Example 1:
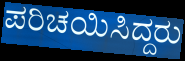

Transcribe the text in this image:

ಪರಿಚಯಿಸಿದ್ದರು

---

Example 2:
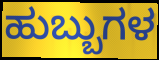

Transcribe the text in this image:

ಹುಬ್ಬುಗಳ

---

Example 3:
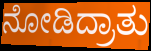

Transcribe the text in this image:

ನೋಡಿದ್ರಾತು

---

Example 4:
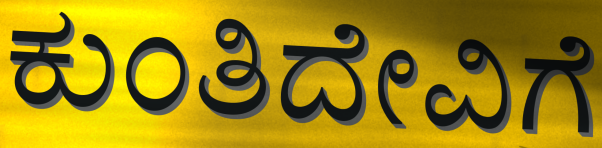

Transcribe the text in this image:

ಕುಂತಿದೇವಿಗೆ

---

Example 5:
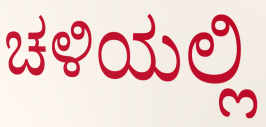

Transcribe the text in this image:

ಚಳಿಯಲ್ಲಿ